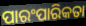
ପାରଂପାରିକତା